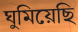
ঘুমিয়েছি